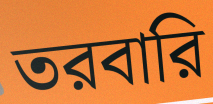
তরবারি